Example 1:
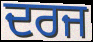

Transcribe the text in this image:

ਦਰਜ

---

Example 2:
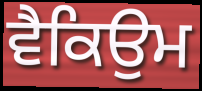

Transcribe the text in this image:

ਵੈਕਿਉਮ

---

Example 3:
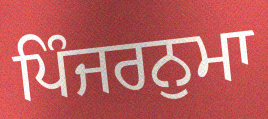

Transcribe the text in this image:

ਪਿੰਜਰਨੁਮਾ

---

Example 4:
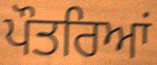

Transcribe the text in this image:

ਪੌਤਰਿਆਂ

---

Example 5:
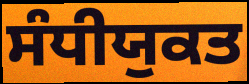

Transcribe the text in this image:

ਸੰਧੀਯੁਕਤ